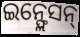
ଇନ୍ଫ୍ଲେସନ୍